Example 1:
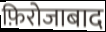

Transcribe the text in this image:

फ़िरोजाबाद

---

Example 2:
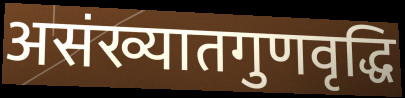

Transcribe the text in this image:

असंख्यातगुणवृद्धि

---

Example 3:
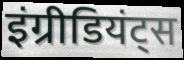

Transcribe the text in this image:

इंग्रीडियंट्स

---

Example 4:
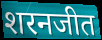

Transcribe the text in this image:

शरनजीत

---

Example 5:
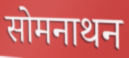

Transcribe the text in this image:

सोमनाथन